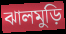
ঝালমুড়ি